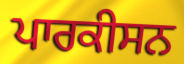
ਪਾਰਕੀਸਨ